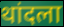
थांदला